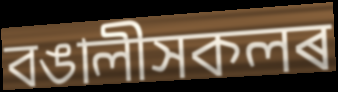
বঙালীসকলৰ